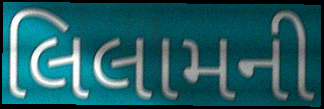
લિલામની